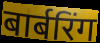
बार्बरिंग